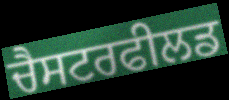
ਚੈਸਟਰਫੀਲਡ